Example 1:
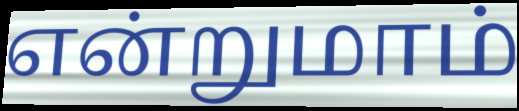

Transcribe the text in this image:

என்றுமாம்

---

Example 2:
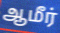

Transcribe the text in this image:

ஆமீர்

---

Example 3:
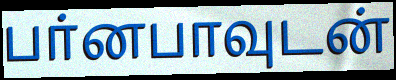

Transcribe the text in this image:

பர்னபாவுடன்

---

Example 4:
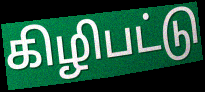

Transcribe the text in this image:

கிழிபட்டு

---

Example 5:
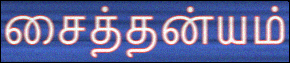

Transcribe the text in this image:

சைத்தன்யம்